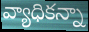
వ్యాధికన్నా